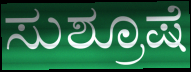
ಸುಶ್ರೂಷೆ